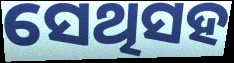
ସେଥିସହ